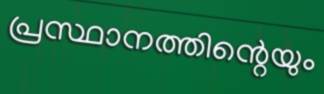
പ്രസ്ഥാനത്തിന്റെയും